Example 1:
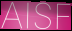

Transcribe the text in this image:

AISF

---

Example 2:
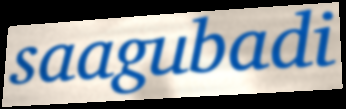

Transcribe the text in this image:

saagubadi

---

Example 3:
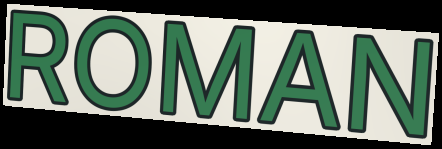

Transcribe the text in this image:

ROMAN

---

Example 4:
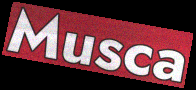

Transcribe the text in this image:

Musca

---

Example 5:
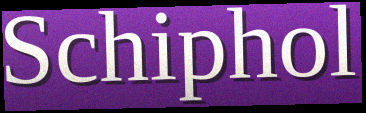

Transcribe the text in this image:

Schiphol